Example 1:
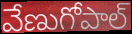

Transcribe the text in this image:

వేణుగోపాల్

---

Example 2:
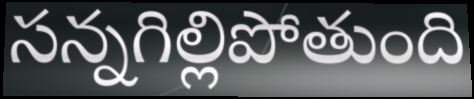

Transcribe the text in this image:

సన్నగిల్లిపోతుంది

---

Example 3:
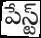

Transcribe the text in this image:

పేస్ట్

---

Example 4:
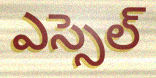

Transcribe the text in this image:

ఎస్సెల్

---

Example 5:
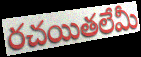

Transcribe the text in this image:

రచయితలేమీ